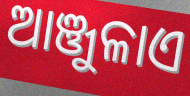
ଆଞ୍ଜୁଳାଏ